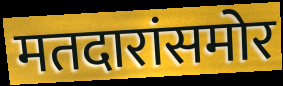
मतदारांसमोर